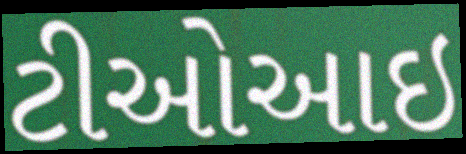
ટીઓઆઇ